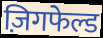
ज़िगफेल्ड